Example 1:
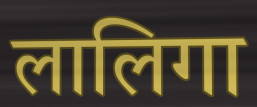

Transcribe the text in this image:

लालिगा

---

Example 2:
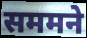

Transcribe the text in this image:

सममने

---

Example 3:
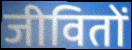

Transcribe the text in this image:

जीवितों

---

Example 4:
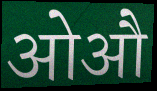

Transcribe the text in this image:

ओऔ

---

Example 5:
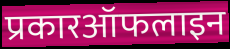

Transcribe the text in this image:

प्रकारऑफलाइन